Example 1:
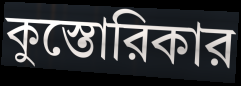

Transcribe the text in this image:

কুস্তোরিকার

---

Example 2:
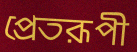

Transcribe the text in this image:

প্রেতরূপী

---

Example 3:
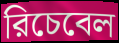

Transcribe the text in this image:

রিচেবেল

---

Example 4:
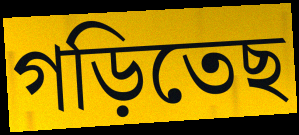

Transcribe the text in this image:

গড়িতেছ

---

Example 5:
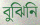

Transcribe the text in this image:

বুঝিনি